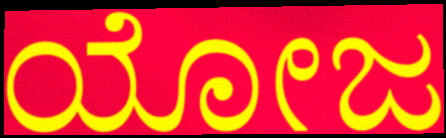
ಯೋಜ